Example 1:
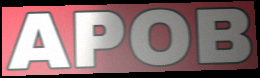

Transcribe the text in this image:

APOB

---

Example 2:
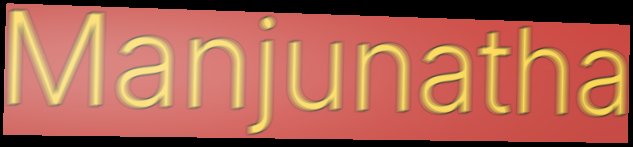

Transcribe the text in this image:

Manjunatha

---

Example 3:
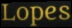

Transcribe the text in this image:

Lopes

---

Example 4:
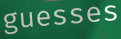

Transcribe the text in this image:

guesses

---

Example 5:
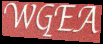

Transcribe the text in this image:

WGEA